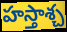
హస్తాశ్చ